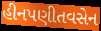
હીનપણીતવસેન